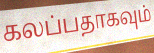
கலப்பதாகவும்